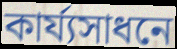
কার্য্যসাধনে